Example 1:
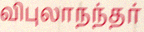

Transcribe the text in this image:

விபுலாநந்தர்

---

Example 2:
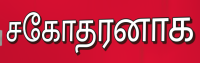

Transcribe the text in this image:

சகோதரனாக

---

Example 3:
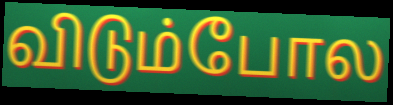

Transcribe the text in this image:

விடும்போல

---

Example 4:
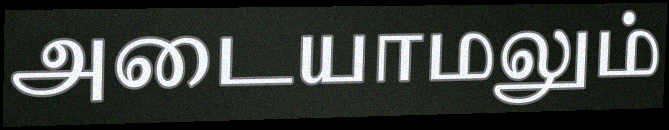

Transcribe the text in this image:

அடையாமலும்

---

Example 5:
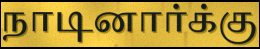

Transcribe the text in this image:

நாடினார்க்கு